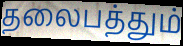
தலைபத்தும்